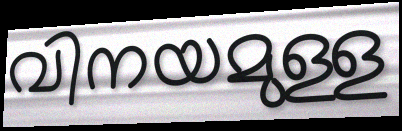
വിനയമുള്ള